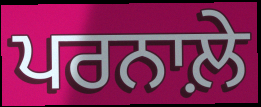
ਪਰਨਾਲ਼ੇ